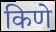
किणे